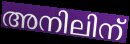
അനിലിന്